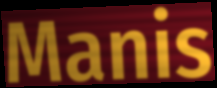
Manis